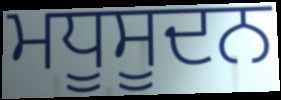
ਮਧੂਸੂਦਨ